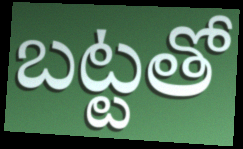
బట్టతో